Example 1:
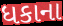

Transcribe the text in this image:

ધકાના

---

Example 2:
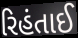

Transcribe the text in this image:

રિહંતાઈ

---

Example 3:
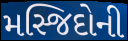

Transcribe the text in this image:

મસ્જિદોની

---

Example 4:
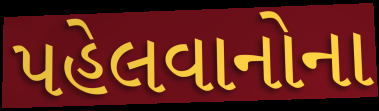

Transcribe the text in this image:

પહેલવાનોના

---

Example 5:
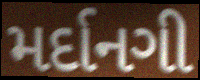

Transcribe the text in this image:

મર્દાનગી